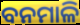
ବନମାଳି